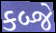
કબ્જે